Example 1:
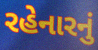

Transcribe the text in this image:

રહેનારનું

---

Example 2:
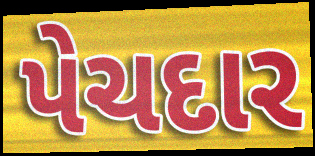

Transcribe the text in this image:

પેચદાર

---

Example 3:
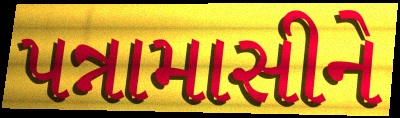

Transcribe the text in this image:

પન્નામાસીને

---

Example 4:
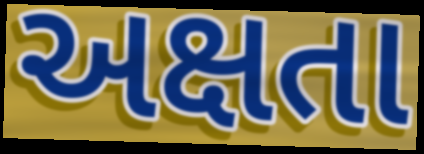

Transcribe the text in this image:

અક્ષતા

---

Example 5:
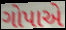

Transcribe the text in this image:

ગોપાએ